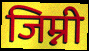
जिम्नी